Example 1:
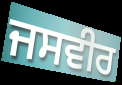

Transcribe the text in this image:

ਜਸਵੀਰ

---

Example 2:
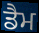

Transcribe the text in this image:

ਡੈਮ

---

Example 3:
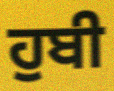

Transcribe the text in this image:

ਹੁਬੀ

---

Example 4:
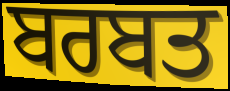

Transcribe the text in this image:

ਬਰਬਤ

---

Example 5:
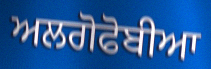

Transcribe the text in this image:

ਅਲਗੋਫੋਬੀਆ